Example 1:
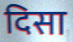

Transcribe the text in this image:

दिसा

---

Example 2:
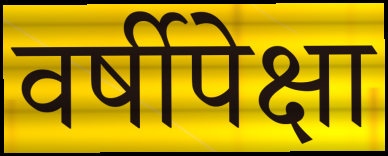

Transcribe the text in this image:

वर्षीपेक्षा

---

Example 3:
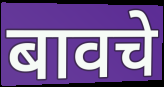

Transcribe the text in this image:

बावचे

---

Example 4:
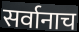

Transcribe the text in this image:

सर्वानाच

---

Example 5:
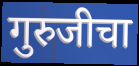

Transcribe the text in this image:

गुरुजीचा